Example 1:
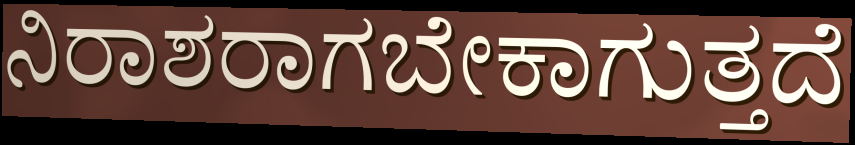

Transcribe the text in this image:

ನಿರಾಶರಾಗಬೇಕಾಗುತ್ತದೆ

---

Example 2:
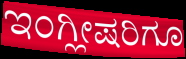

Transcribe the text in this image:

ಇಂಗ್ಲೀಷರಿಗೂ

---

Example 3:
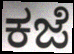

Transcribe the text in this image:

ಕಜೆ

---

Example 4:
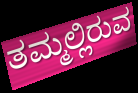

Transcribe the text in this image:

ತಮ್ಮಲ್ಲಿರುವ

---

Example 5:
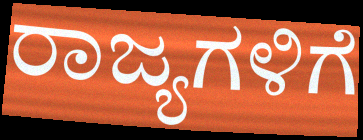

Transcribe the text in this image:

ರಾಜ್ಯಗಳಿಗೆ